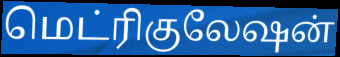
மெட்ரிகுலேஷன்